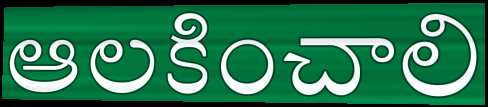
ఆలకించాలి